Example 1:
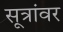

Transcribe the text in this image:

सूत्रांवर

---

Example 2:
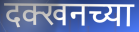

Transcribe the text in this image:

दक्खनच्या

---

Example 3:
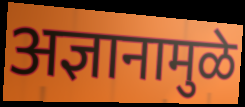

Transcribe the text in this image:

अज्ञानामुळे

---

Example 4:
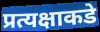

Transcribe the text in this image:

प्रत्यक्षाकडे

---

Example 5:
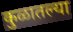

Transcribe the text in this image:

कुळातल्या